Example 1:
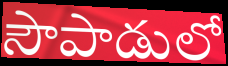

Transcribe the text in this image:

సౌపాడులో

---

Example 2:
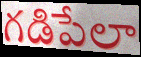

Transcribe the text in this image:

గడిపేలా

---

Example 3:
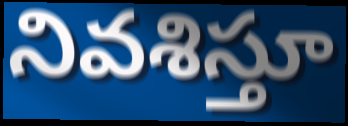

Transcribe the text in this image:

నివశిస్తూ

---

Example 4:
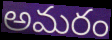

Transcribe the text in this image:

అమరం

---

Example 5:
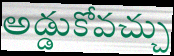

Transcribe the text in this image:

అడ్డుకోవచ్చు